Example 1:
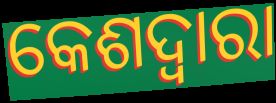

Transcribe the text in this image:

କେଶଦ୍ବାରା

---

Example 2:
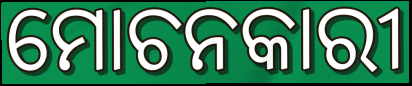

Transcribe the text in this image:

ମୋଚନକାରୀ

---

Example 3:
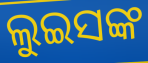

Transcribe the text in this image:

ଲୁଇସଙ୍କ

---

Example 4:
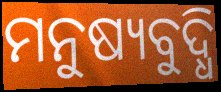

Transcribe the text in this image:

ମନୁଷ୍ୟବୁଦ୍ଧି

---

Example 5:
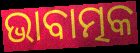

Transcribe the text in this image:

ଭାବାତ୍ମକ